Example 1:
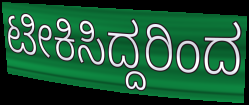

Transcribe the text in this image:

ಟೀಕಿಸಿದ್ದರಿಂದ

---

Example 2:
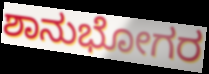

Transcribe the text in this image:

ಶಾನುಭೋಗರ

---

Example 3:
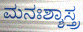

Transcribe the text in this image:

ಮನಃಶ್ಶಾಸ್ತ್ರ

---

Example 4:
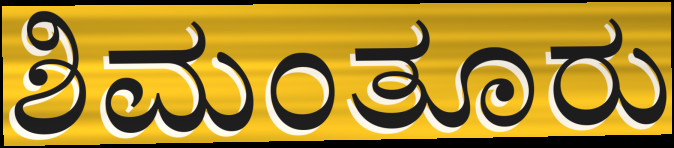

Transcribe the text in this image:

ಶಿಮಂತೂರು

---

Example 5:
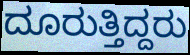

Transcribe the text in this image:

ದೂರುತ್ತಿದ್ದರು